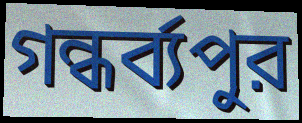
গন্ধর্ব্যপুর